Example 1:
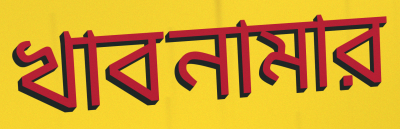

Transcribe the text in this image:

খাবনামার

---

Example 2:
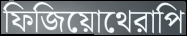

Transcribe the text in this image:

ফিজিয়োথেরাপি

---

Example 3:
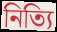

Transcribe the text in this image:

নিত্যি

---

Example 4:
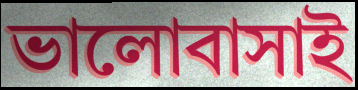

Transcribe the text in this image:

ভালোবাসাই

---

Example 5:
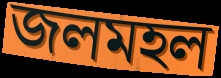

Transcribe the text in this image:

জলমহল